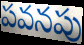
పవనపు